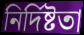
নিৰ্দিষ্টতা